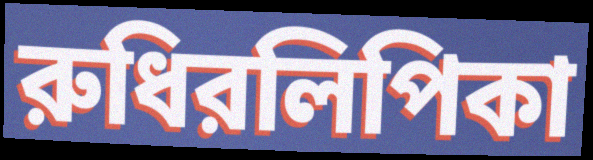
রুধিরলিপিকা